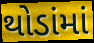
થોડાંમાં